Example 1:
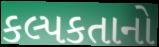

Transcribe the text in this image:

કલ્પકતાનો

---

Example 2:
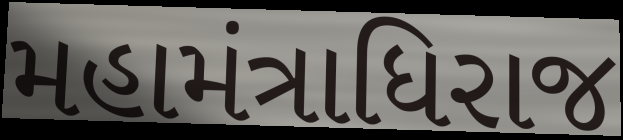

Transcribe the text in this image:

મહામંત્રાધિરાજ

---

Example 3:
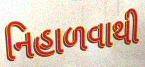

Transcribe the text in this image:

નિહાળવાથી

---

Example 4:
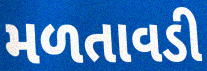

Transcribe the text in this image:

મળતાવડી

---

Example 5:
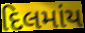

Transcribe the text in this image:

દિલમાંય